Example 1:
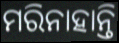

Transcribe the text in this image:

ମରିନାହାନ୍ତି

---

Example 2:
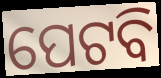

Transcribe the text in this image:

ପେଟବି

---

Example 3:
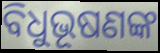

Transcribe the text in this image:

ବିଧୁଭୂଷଣଙ୍କ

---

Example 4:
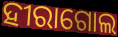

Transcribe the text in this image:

ହୀରାଗୋଲ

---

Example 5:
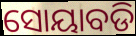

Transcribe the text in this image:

ସୋୟାବଡି